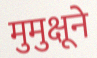
मुमुक्षूने